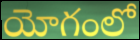
యోగంలో